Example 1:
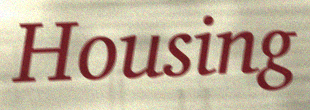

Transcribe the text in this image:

Housing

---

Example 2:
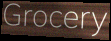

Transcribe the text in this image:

Grocery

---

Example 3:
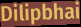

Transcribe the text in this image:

Dilipbhai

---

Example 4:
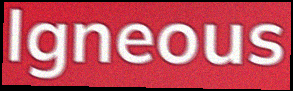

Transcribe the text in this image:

Igneous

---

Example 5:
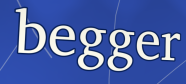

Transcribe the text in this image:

begger